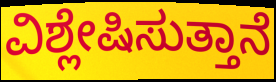
ವಿಶ್ಲೇಷಿಸುತ್ತಾನೆ